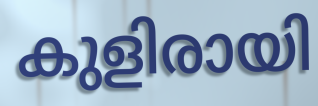
കുളിരായി